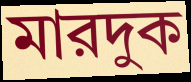
মারদুক